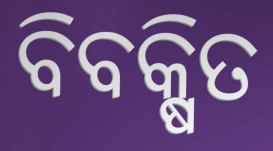
ବିବକ୍ଷିତ